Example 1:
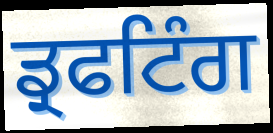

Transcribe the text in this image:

ਡ੍ਰਫਟਿੰਗ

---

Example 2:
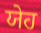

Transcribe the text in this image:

ਯੇਹ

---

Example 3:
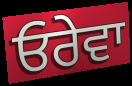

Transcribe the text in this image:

ਓਰੇਵਾ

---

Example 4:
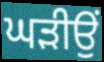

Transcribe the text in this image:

ਘੜੀਉਂ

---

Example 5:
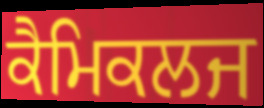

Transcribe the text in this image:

ਕੈਮਿਕਲਜ